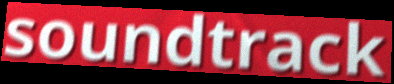
soundtrack